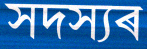
সদস্যৰ